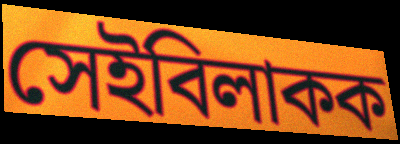
সেইবিলাকক